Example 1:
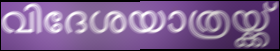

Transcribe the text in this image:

വിദേശയാത്രയ്ക്ക്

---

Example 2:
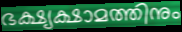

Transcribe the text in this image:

ഭക്ഷ്യക്ഷാമത്തിനും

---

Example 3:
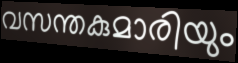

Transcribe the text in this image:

വസന്തകുമാരിയും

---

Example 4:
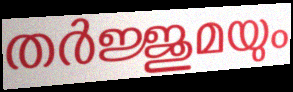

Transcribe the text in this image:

തർജ്ജുമയും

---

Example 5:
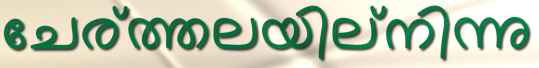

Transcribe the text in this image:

ചേര്ത്തലയില്നിന്നു